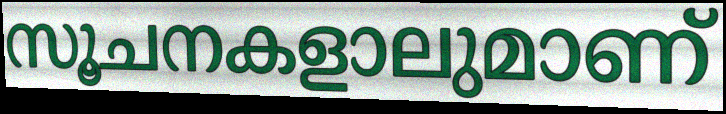
സൂചനകളാലുമാണ്